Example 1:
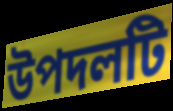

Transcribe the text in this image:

উপদলটি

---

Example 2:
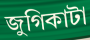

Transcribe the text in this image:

জুগিকাটা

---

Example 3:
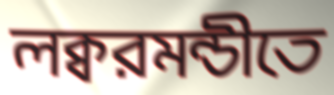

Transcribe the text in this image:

লক্বরমন্ডীতে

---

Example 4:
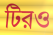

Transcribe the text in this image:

টিরও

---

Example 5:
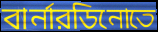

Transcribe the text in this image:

বার্নারডিনোতে